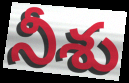
నీశు